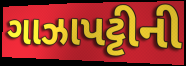
ગાઝાપટ્ટીની